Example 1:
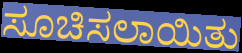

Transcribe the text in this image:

ಸೂಚಿಸಲಾಯಿತು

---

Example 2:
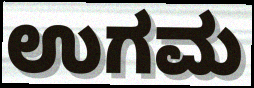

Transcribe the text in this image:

ಉಗಮ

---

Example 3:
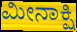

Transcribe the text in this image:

ಮೀನಾಕ್ಷಿ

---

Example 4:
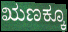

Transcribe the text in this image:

ಋಣಕ್ಕೂ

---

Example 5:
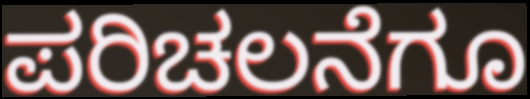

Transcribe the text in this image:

ಪರಿಚಲನೆಗೂ